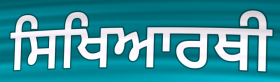
ਸਿਖਿਆਰਥੀ